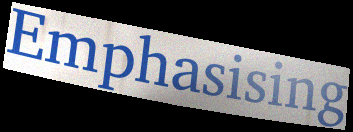
Emphasising